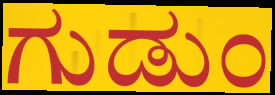
ಗುಡುಂ